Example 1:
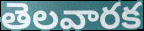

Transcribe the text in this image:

తెలవారక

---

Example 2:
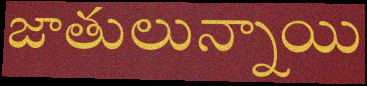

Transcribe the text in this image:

జాతులున్నాయి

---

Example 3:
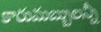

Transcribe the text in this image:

కారుమబ్బులన్నీ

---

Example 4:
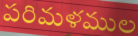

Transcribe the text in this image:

పరిమళముల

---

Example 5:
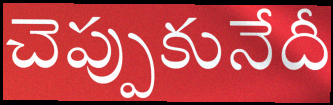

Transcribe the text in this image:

చెప్పుకునేదీ